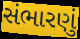
સંભારણું